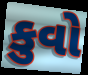
કુવો